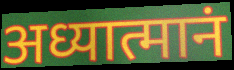
अध्यात्मानं